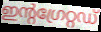
ഇന്റഗ്രേറ്റഡ്